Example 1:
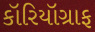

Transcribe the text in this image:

કૉરિયૉગ્રાફ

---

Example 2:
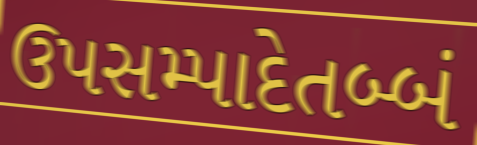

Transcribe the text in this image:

ઉપસમ્પાદેતબ્બં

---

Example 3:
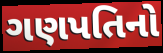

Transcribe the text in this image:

ગણપતિનો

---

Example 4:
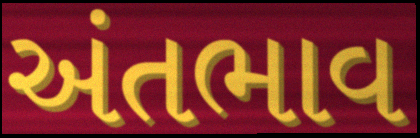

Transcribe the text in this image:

અંતભાવ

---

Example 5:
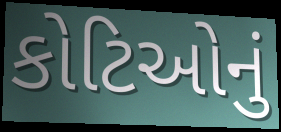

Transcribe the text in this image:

કોટિઓનું